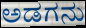
ಅಡಗನು